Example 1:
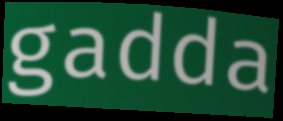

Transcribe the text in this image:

gadda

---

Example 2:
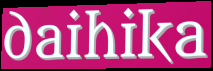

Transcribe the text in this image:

daihika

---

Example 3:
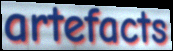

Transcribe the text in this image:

artefacts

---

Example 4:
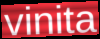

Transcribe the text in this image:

vinita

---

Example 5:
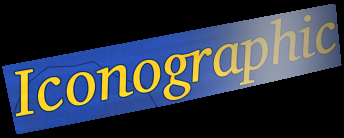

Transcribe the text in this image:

Iconographic